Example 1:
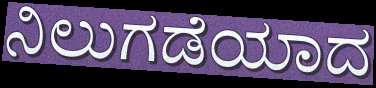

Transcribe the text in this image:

ನಿಲುಗಡೆಯಾದ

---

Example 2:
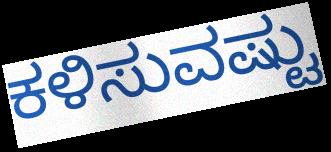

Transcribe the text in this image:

ಕಳಿಸುವಷ್ಟು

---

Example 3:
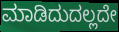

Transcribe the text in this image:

ಮಾಡಿದುದಲ್ಲದೇ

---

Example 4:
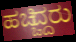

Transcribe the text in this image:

ಹಚ್ಚಿದ್ದರು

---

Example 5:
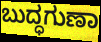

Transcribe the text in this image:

ಬುದ್ಧಗುಣಾ